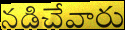
నడిచేవారు